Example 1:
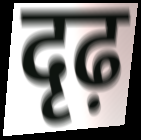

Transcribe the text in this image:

दृढ़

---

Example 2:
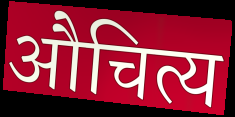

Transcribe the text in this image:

औचित्य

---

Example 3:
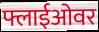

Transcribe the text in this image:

फ्लाईओवर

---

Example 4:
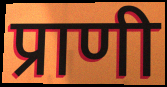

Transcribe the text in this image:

प्राणी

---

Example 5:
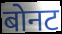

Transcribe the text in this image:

बोनट